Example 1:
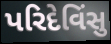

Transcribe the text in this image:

પરિદેવિંસુ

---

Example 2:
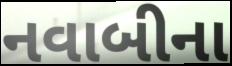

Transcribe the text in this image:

નવાબીના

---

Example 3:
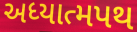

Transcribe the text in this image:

અધ્યાત્મપથ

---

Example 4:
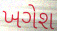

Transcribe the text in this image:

ખગેશ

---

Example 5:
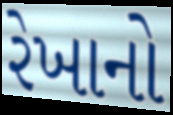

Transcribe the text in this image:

રેખાનો